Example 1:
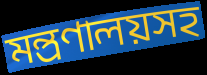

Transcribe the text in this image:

মন্ত্রণালয়সহ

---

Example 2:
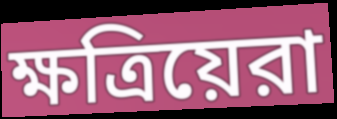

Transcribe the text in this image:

ক্ষত্রিয়েরা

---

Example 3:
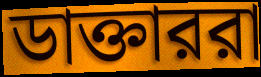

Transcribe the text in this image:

ডাক্তাররা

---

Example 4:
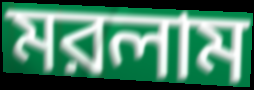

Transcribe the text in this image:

মরলাম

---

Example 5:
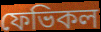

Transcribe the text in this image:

ফেভিকল